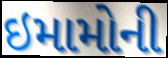
ઇમામોની